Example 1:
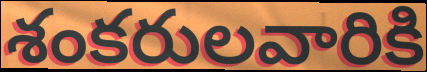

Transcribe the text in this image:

శంకరులవారికి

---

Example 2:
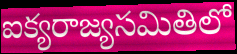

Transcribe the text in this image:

ఐక్యరాజ్యసమితిలో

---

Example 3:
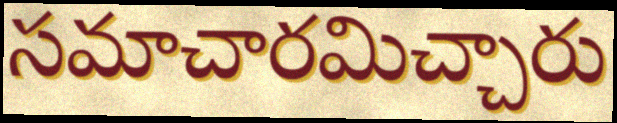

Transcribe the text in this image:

సమాచారమిచ్చారు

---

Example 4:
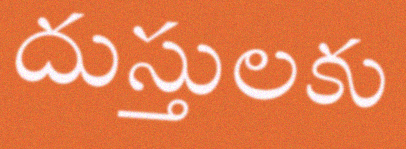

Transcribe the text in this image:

దుస్తులకు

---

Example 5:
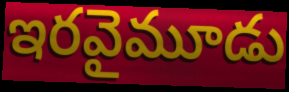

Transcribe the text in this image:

ఇరవైమూడు